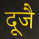
दूजै